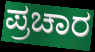
ಪ್ರಚಾರ